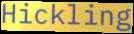
Hickling